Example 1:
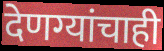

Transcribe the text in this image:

देणग्यांचाही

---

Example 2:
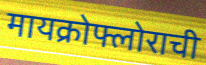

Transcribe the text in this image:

मायक्रोफ्लोराची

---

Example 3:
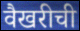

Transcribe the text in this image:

वैखरीची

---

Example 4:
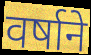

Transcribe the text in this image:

वर्षाने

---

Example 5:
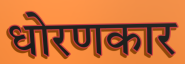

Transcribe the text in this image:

धोरणकार